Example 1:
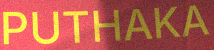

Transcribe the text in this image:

PUTHAKA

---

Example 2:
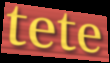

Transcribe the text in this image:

tete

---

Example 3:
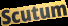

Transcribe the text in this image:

Scutum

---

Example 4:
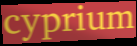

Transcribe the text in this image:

cyprium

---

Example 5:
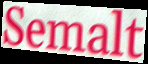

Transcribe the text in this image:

Semalt